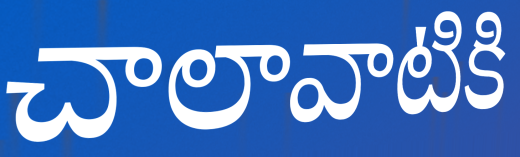
చాలావాటికి